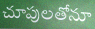
చూపులతోనూ